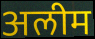
अलीम